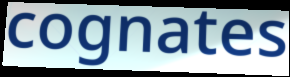
cognates